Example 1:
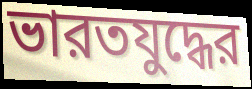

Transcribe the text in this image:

ভারতযুদ্ধের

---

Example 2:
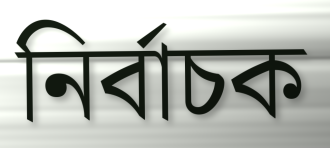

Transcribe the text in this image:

নির্বাচক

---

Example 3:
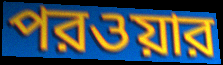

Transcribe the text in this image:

পরওয়ার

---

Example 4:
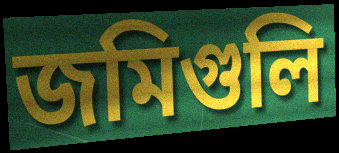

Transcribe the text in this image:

জমিগুলি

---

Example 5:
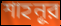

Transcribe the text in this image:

শাহনূর